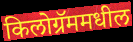
किलोग्रॅममधील